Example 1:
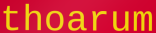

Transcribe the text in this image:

thoarum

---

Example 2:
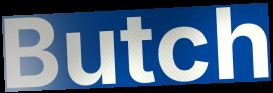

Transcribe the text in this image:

Butch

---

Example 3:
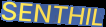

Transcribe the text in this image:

SENTHIL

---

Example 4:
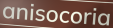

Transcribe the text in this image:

anisocoria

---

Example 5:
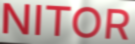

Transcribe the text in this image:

NITOR